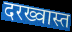
दरख्वास्त